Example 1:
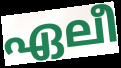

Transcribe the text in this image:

ഏലീ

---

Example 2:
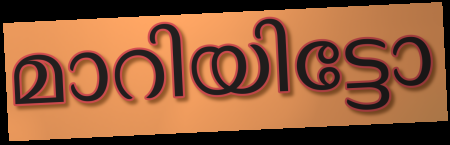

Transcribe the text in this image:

മാറിയിട്ടോ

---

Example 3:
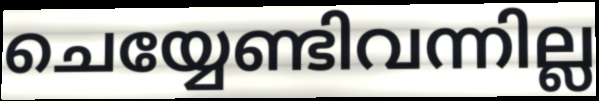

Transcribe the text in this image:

ചെയ്യേണ്ടിവന്നില്ല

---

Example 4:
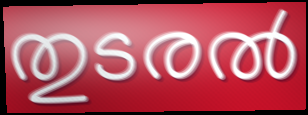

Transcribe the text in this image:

തുടരൽ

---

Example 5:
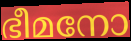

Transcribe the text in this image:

ഭീമനോ